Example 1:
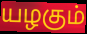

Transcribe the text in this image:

யழகும்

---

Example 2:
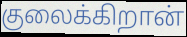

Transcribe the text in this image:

குலைக்கிறான்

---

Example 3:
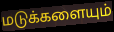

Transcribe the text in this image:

மடுக்களையும்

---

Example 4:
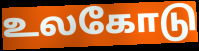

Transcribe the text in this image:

உலகோடு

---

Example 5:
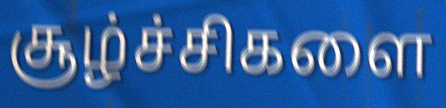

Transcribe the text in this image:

சூழ்ச்சிகளை